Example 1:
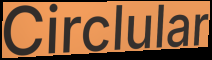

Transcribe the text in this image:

Circlular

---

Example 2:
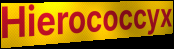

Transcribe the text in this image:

Hierococcyx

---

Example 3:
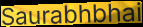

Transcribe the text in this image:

Saurabhbhai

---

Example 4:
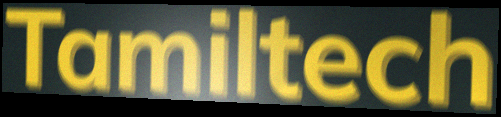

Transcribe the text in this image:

Tamiltech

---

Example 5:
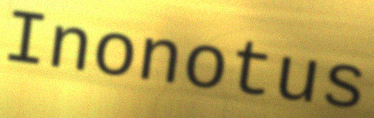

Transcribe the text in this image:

Inonotus